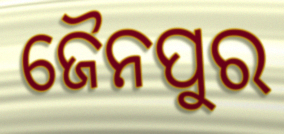
ଜୈନପୁର